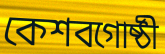
কেশবগোষ্ঠী